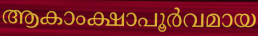
ആകാംക്ഷാപൂർവമായ